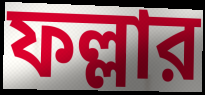
ফল্লার